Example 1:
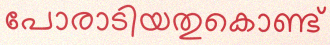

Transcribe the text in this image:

പോരാടിയതുകൊണ്ട്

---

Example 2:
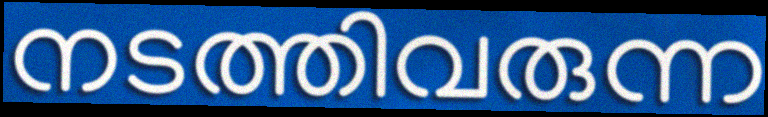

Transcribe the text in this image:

നടത്തിവരുന്ന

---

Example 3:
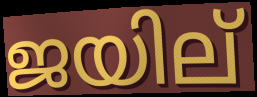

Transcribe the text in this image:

ജയില്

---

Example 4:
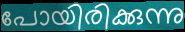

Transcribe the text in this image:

പോയിരിക്കുന്നു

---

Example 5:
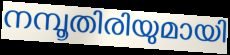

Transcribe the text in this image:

നമ്പൂതിരിയുമായി